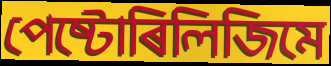
পেষ্টোৰিলিজিমে